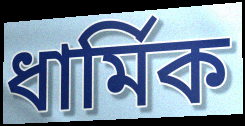
ধাৰ্মিক